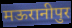
मऊरानीपुर